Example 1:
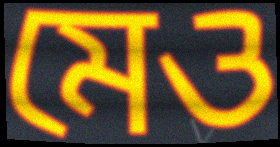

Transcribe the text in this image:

মেও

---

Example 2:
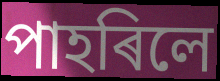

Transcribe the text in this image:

পাহৰিলে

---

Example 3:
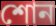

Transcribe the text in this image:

শোন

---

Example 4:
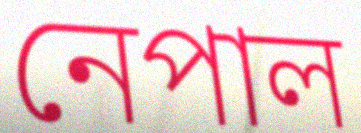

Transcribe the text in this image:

নেপাল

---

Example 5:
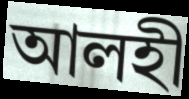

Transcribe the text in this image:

আলহী